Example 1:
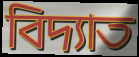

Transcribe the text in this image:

বিদ্যাত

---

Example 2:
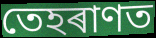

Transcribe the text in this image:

তেহৰাণত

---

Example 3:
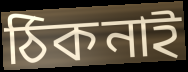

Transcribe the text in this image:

ঠিকনাই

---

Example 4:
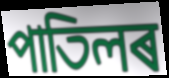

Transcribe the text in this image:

পাতিলৰ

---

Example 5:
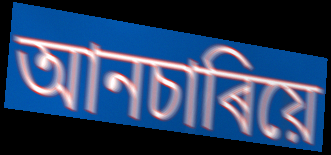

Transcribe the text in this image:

আনচাৰিয়ে